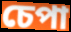
চেপা